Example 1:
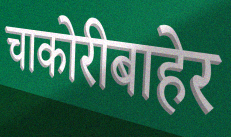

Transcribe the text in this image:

चाकोरीबाहेर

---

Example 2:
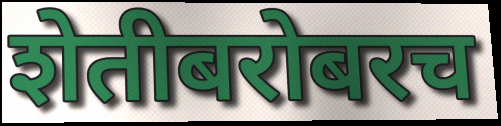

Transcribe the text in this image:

शेतीबरोबरच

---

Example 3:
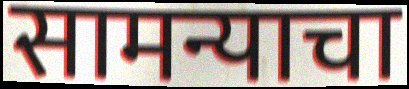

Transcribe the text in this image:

सामन्याचा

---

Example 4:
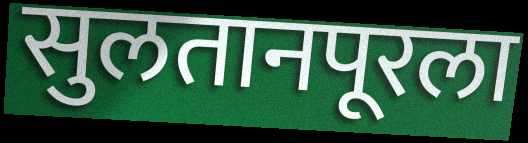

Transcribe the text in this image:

सुलतानपूरला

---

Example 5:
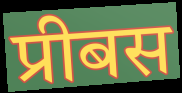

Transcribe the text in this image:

प्रीबस